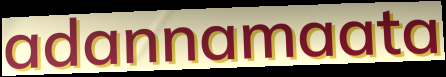
adannamaata